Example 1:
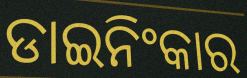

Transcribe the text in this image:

ଡାଇନିଂକାର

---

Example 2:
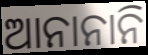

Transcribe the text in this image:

ଆନାନାନି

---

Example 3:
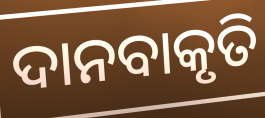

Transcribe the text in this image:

ଦାନବାକୃତି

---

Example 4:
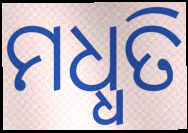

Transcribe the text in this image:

ମଧ୍ଧତି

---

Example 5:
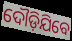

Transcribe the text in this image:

ଦୌଡ଼ିଯିବେ